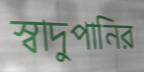
স্বাদুপানির